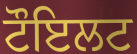
ਟੌਇਲਟ